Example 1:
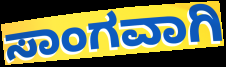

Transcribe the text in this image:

ಸಾಂಗವಾಗಿ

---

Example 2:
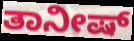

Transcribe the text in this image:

ತಾನೀಷ್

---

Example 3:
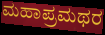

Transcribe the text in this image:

ಮಹಾಪ್ರಮಥರ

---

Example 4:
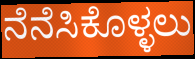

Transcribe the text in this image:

ನೆನೆಸಿಕೊಳ್ಳಲು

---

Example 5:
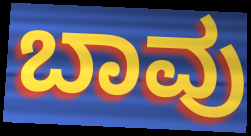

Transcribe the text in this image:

ಬಾವು